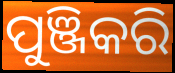
ପୁଞ୍ଜିକରି